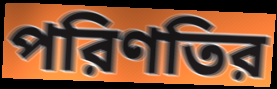
পরিণতির